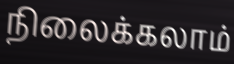
நிலைக்கலாம்